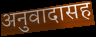
अनुवादासह